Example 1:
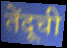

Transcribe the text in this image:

तेंदूची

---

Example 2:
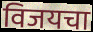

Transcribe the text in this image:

विजयचा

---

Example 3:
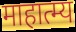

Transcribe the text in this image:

माहात्म्य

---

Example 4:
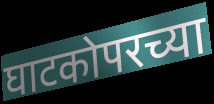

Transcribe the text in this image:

घाटकोपरच्या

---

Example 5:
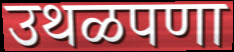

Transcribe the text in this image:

उथळपणा